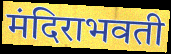
मंदिराभवती